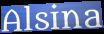
Alsina